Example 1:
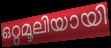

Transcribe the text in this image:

ഒറ്റമൂലിയായി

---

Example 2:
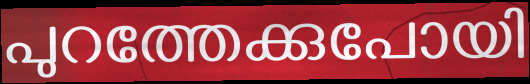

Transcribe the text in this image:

പുറത്തേക്കുപോയി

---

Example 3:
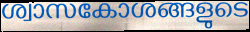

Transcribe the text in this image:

ശ്വാസകോശങ്ങളുടെ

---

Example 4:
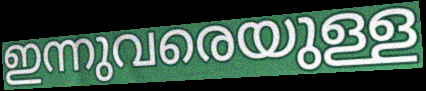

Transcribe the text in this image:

ഇന്നുവരെയുള്ള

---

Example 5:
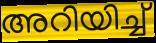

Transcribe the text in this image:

അറിയിച്ച്